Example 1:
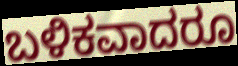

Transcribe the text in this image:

ಬಳಿಕವಾದರೂ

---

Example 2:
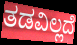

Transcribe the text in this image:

ತಡವಿಲ್ಲದೆ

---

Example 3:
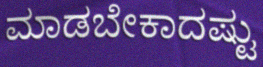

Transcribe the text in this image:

ಮಾಡಬೇಕಾದಷ್ಟು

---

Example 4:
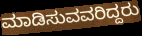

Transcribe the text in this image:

ಮಾಡಿಸುವವರಿದ್ದರು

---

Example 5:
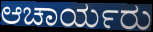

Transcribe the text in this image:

ಆಚಾರ್ಯರು